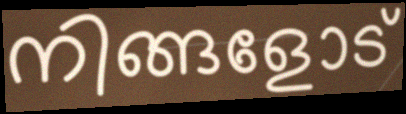
നിങ്ങളോട്